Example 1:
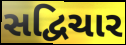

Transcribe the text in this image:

સદ્વિચાર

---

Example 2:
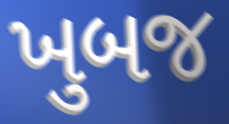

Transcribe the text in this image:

ખુબજ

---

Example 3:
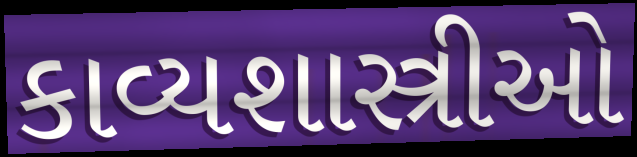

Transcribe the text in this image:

કાવ્યશાસ્ત્રીઓ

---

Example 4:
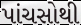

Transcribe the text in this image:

પાંચસોથી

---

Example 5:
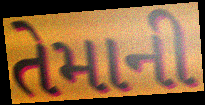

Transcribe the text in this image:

તેમાની